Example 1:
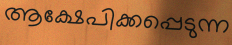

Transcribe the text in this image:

ആക്ഷേപിക്കപ്പെടുന്ന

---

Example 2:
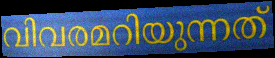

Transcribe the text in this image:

വിവരമറിയുന്നത്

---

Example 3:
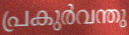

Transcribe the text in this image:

പ്രകുർവന്തു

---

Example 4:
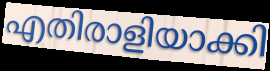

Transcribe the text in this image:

എതിരാളിയാക്കി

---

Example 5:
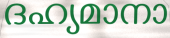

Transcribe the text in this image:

ദഹ്യമാനാ